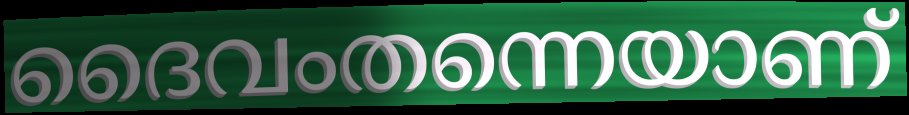
ദൈവംതന്നെയാണ്